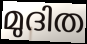
മുദിത